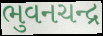
ભુવનચન્દ્ર